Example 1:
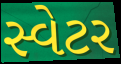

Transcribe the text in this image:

સ્વેટર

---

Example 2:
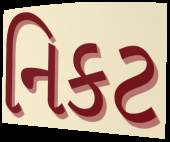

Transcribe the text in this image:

નિકટ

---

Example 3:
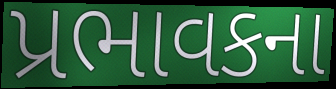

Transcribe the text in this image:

પ્રભાવકના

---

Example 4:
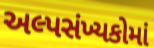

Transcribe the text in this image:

અલ્પસંખ્યકોમાં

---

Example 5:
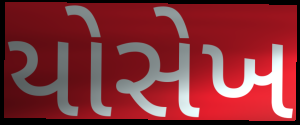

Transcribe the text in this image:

યોસેખ